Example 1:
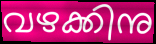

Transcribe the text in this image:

വഴക്കിനു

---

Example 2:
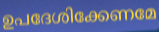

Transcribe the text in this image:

ഉപദേശിക്കേണമേ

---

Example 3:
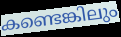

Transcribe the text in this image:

കണ്ടെങ്കിലും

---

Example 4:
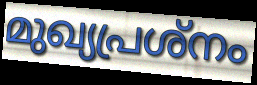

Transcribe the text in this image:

മുഖ്യപ്രശ്നം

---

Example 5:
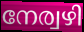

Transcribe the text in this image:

നേര്വഴി